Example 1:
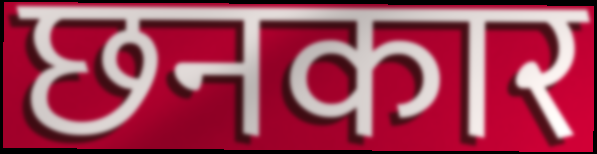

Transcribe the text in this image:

छनकार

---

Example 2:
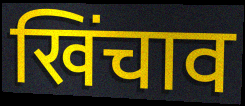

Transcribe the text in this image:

खिंचाव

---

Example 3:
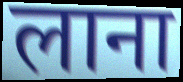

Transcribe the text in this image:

लाना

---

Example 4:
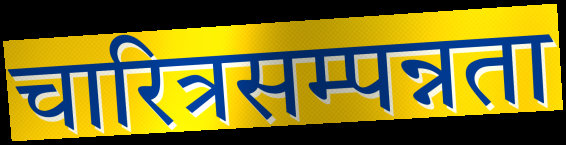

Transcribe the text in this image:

चारित्रसम्पन्नता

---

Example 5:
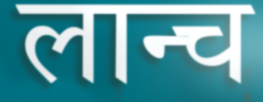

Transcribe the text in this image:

लान्‍च